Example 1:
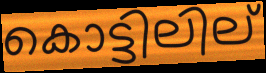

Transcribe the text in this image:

കൊട്ടിലില്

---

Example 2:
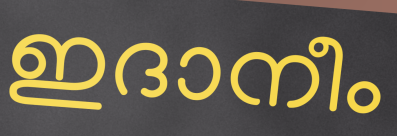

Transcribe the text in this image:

ഇദാനീം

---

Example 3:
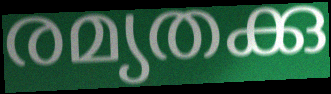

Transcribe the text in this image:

രമ്യതക്കു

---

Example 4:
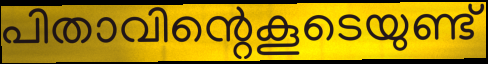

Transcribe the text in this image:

പിതാവിന്റെകൂടെയുണ്ട്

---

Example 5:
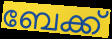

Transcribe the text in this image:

ബേക്ക്